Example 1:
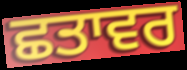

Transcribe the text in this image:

ਛਤਾਵਰ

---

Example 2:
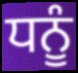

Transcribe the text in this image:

ਧਨੂੰ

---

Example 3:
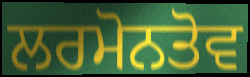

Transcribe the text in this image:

ਲਰਮੋਨਤੋਵ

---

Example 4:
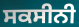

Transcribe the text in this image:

ਸਕਸੀਨੀ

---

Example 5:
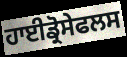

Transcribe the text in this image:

ਹਾਈਡ੍ਰੋਸੇਫਲਸ